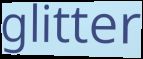
glitter